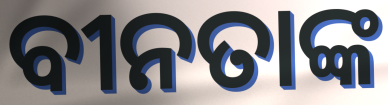
ବୀନତାଙ୍କ